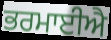
ਭਰਮਾਈਐ